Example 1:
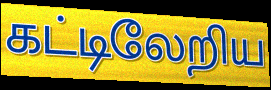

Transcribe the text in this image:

கட்டிலேறிய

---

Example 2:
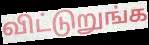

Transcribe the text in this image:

விட்டுறுங்க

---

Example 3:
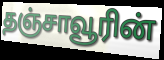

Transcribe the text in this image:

தஞ்சாவூரின்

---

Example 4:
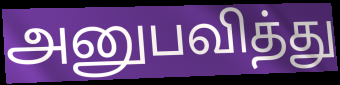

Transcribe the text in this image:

அனுபவித்து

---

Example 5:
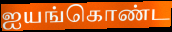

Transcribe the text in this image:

ஐயங்கொண்ட